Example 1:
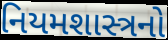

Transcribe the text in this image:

નિયમશાસ્ત્રનો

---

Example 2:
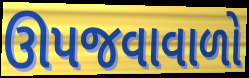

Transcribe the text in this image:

ઊપજવાવાળો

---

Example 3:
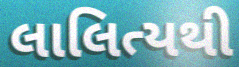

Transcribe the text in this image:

લાલિત્યથી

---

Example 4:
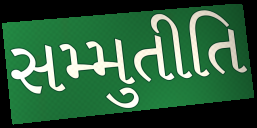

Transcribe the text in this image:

સમ્મુતીતિ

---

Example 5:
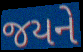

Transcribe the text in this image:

જયને